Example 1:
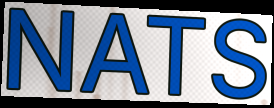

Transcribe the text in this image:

NATS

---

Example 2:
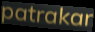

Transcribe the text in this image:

patrakar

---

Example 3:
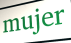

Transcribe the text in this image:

mujer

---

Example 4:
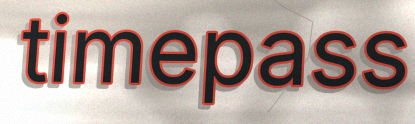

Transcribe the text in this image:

timepass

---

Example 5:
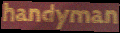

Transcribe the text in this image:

handyman